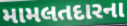
મામલતદારના